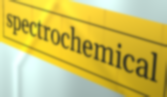
spectrochemical